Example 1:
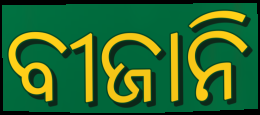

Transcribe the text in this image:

ବୀଜାନି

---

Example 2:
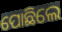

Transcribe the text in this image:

ପୋଛିଲେ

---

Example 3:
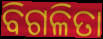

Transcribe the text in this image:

ବିଗଳିତା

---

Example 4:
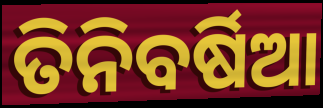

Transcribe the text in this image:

ତିନିବର୍ଷିଆ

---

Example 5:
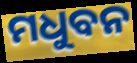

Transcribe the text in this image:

ମଧୁବନ